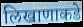
लिखाणाकडे